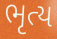
ભૃત્ય